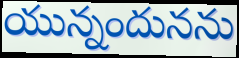
యున్నందునను